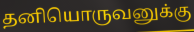
தனியொருவனுக்கு